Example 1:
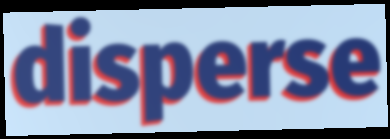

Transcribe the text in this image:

disperse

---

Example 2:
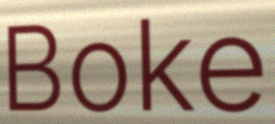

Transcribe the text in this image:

Boke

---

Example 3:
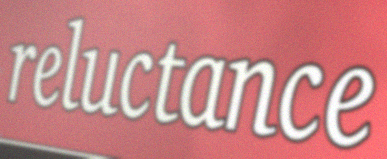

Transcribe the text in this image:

reluctance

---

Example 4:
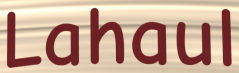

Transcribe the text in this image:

Lahaul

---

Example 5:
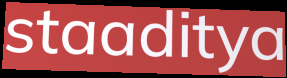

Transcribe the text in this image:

staaditya